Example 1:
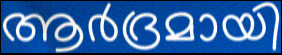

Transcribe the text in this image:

ആർദ്രമായി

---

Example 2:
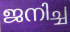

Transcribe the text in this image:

ജനിച്ച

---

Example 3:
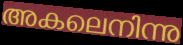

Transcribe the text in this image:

അകലെനിന്നു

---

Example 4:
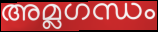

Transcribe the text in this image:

അമ്ലഗന്ധം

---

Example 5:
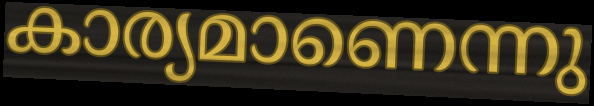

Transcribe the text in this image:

കാര്യമാണെന്നു